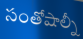
సంతోషాల్నీ